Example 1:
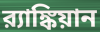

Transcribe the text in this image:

র‍্যাঙ্কিয়ান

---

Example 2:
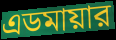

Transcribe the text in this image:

এডমায়ার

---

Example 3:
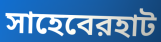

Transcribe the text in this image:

সাহেবেরহাট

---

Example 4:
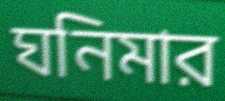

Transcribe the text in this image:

ঘনিমার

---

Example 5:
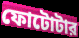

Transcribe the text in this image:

ফোটোটার